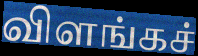
விளங்கச்